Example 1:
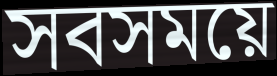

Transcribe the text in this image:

সবসময়ে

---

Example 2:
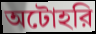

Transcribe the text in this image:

অটোহরি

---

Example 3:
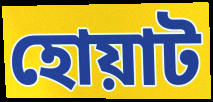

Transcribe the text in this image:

হোয়াট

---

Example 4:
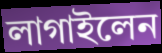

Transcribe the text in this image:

লাগাইলেন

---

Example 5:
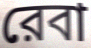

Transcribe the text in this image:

রেবা